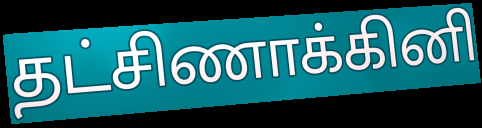
தட்சிணாக்கினி